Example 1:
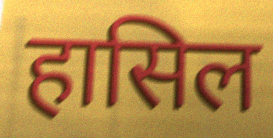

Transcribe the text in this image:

हासिल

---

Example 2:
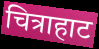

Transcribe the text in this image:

चित्राहाट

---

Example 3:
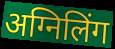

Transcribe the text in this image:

अग्निलिंग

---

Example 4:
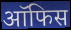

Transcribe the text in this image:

ऑफिस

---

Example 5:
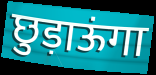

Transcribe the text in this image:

छुड़ाऊंगा